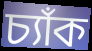
চ্যাঁক